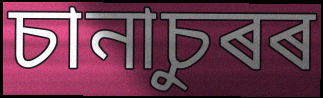
চানাচুৰৰ